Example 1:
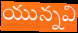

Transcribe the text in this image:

యున్నవి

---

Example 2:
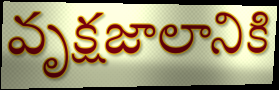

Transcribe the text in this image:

వృక్షజాలానికి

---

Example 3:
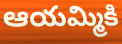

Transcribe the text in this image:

ఆయమ్మికి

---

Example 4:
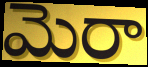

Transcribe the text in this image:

మెరా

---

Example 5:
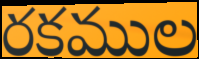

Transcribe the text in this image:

రకముల